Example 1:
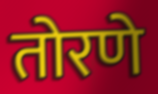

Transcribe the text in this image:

तोरणे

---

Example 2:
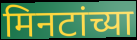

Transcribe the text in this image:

मिनटांच्या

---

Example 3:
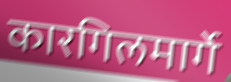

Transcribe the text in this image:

कारगिलमार्गे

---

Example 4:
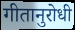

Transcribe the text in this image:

गीतानुरोधी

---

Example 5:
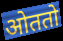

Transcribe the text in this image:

ओततो